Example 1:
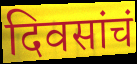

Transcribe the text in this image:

दिवसांचं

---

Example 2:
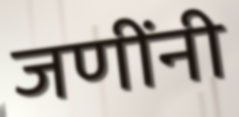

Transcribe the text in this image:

जणींनी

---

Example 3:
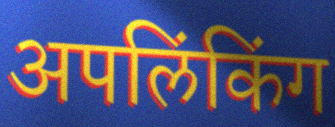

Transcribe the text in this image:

अपलिंकिंग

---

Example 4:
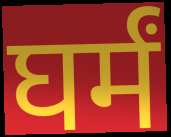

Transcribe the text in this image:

घर्मं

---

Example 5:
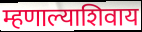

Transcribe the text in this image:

म्हणाल्याशिवाय